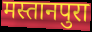
मस्तानपुरा